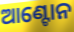
ଆଣ୍ଟୋନ